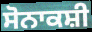
ਸੋਨਾਕਸ਼ੀ